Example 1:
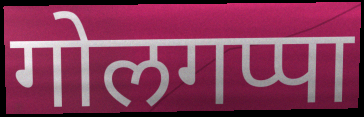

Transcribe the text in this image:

गोलगप्पा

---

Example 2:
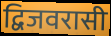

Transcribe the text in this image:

द्विजवरासी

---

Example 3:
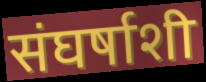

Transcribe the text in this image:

संघर्षाशी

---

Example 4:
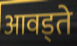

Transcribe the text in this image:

आवड्ते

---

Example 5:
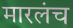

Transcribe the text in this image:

मारलंच